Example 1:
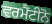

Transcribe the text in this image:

ਵਰਮੈਂਟੀਨੋ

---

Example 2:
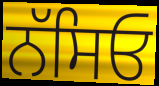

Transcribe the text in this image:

ਨੱਸਿਓ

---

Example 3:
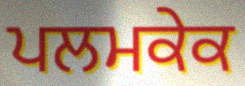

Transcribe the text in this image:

ਪਲਮਕੇਕ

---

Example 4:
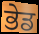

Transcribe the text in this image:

ਭੇਡ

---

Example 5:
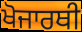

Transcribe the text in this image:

ਖੋਜਾਰਥੀ